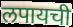
लपायची